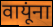
वायूंना